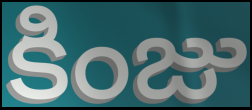
కింజు